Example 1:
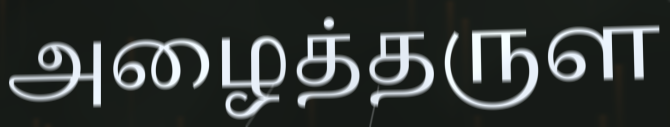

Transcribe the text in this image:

அழைத்தருள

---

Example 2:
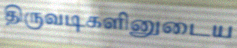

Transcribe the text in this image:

திருவடிகளினுடைய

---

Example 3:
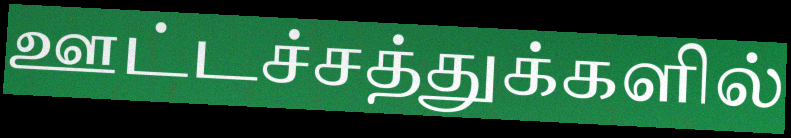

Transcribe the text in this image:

ஊட்டச்சத்துக்களில்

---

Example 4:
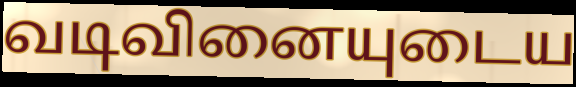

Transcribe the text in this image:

வடிவினையுடைய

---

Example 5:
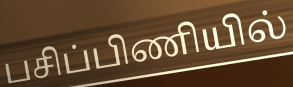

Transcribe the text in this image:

பசிப்பிணியில்